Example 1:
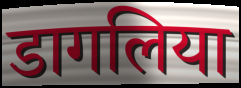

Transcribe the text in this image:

डागलिया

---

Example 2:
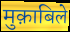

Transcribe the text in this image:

मुक़ाबिले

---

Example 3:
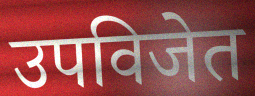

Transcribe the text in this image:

उपविजेत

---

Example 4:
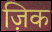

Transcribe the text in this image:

ज़िक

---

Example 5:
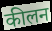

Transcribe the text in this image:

कीलन